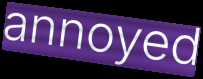
annoyed